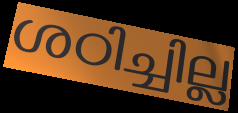
ശഠിച്ചില്ല